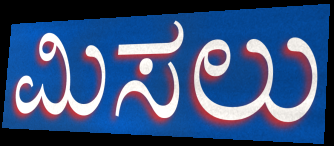
ಮಿಸಲು